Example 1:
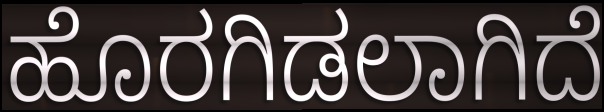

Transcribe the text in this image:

ಹೊರಗಿಡಲಾಗಿದೆ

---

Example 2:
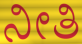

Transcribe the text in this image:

ನೀತಿ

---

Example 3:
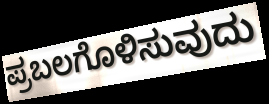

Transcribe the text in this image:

ಪ್ರಬಲಗೊಳಿಸುವುದು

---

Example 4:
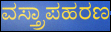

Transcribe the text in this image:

ವಸ್ತ್ರಾಪಹರಣ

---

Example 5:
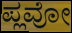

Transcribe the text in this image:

ಪ್ಲವೋ